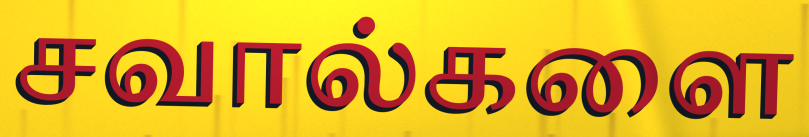
சவால்களை